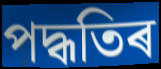
পদ্ধতিৰ